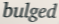
bulged